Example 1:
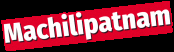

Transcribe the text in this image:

Machilipatnam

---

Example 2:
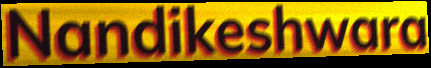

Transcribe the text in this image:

Nandikeshwara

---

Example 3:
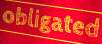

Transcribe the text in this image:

obligated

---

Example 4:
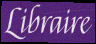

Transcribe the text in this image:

Libraire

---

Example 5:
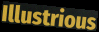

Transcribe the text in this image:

Illustrious